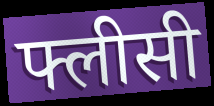
फ्लीसी